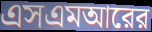
এসএমআরের